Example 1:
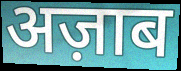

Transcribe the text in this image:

अज़ाब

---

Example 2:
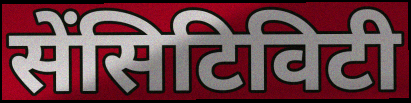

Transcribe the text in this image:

सेंसिटिविटी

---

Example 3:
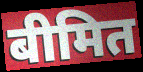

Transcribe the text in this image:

बीमित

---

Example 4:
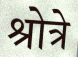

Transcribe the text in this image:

श्रोत्रे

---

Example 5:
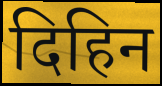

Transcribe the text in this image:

दिहिन